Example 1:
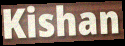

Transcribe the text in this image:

Kishan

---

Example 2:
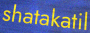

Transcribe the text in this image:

shatakatil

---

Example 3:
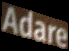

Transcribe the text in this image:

Adare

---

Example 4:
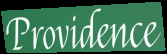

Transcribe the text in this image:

Providence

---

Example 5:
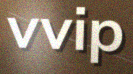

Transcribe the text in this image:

vvip